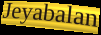
Jeyabalan